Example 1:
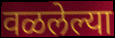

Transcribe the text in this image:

वळलेल्या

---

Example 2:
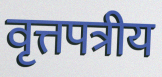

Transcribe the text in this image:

वृत्तपत्रीय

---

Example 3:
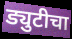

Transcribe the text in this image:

ड्युटीचा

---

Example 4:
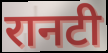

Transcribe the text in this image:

रानटी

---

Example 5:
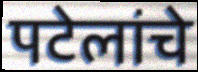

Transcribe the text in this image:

पटेलांचे